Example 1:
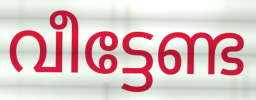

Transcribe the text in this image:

വീട്ടേണ്ട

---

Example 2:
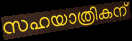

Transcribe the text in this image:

സഹയാത്രികന്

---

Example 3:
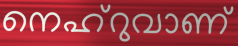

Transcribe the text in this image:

നെഹ്റുവാണ്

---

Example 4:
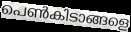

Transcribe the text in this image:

പെൺകിടാങ്ങളെ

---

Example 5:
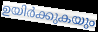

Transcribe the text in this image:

ഉയിർക്കുകയും